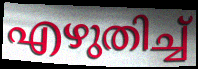
എഴുതിച്ച്